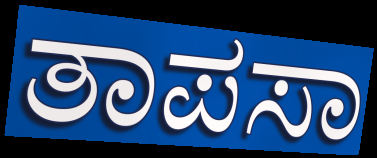
ತಾಪಸಾ